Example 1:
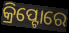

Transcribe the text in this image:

କ୍ରିପ୍ଟୋରେ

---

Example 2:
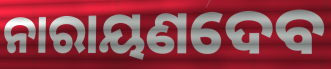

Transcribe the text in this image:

ନାରାୟଣଦେବ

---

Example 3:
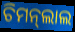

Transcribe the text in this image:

ଚିମନ୍‍ଲାଲ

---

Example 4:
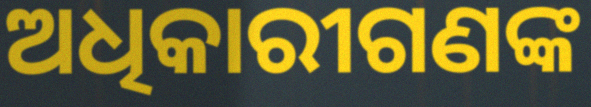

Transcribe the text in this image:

ଅଧିକାରୀଗଣଙ୍କ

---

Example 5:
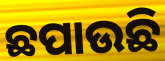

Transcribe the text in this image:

ଛପାଉଛି